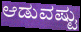
ಆಡುವಷ್ಟು